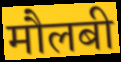
मौलबी